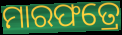
ମାରଫତ୍ରେ